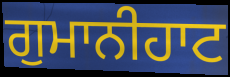
ਗੁਮਾਨੀਹਾਟ